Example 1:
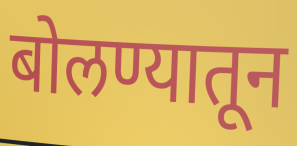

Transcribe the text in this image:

बोलण्यातून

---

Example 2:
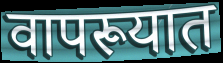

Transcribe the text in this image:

वापरूयात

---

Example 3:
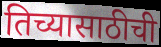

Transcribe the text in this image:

तिच्यासाठीची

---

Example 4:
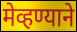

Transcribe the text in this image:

मेव्हण्याने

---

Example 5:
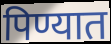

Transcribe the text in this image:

पिण्यात